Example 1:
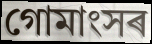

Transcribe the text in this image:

গোমাংসৰ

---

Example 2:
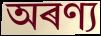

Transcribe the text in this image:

অৰণ্য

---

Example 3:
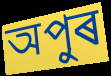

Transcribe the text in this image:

অপুৰ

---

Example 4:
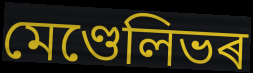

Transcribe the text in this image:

মেণ্ডেলিভৰ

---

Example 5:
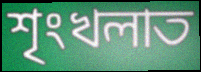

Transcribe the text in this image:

শৃংখলাত